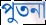
পুতনা